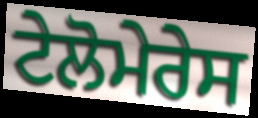
ਟੇਲੋਮੇਰੇਸ